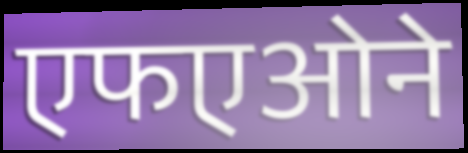
एफएओने